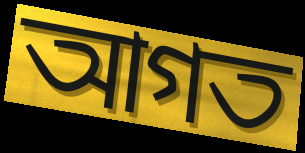
আগত